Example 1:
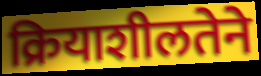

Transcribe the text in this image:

क्रियाशीलतेने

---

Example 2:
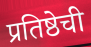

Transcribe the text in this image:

प्रतिष्ठेची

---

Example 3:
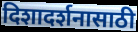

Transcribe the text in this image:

दिशादर्शनासाठी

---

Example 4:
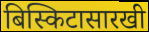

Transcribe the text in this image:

बिस्किटासारखी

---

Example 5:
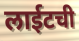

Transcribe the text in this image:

लाईटची